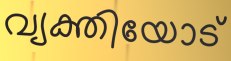
വ്യക്തിയോട്